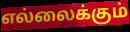
எல்லைக்கும்